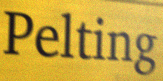
Pelting